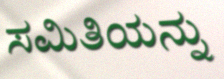
ಸಮಿತಿಯನ್ನು